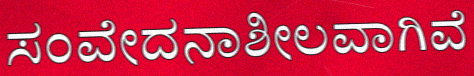
ಸಂವೇದನಾಶೀಲವಾಗಿವೆ